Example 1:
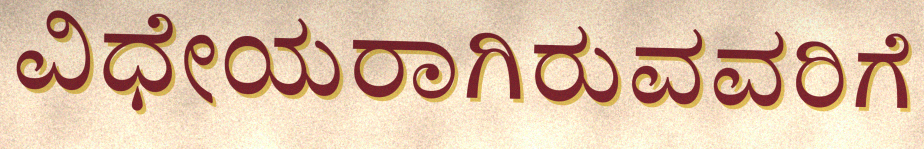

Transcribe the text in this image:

ವಿಧೇಯರಾಗಿರುವವರಿಗೆ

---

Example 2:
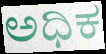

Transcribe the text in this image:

ಅಧಿಕ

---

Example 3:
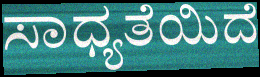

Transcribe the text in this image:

ಸಾಧ್ಯತೆಯಿದೆ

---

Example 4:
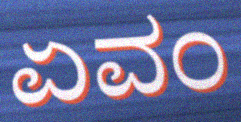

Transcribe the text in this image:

ಏವಂ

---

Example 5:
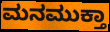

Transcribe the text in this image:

ಮನಮುಕ್ತಾ